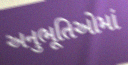
અનુભૂતિઓમાં